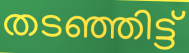
തടഞ്ഞിട്ട്